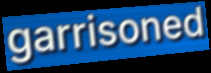
garrisoned